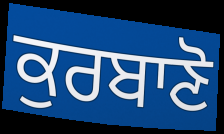
ਕੁਰਬਾਣੋ